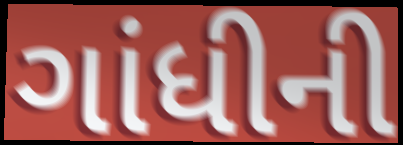
ગાંધીની